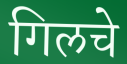
गिलचे